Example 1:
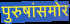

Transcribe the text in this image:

पुरुषांसमोर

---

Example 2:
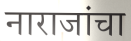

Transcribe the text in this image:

नाराजांचा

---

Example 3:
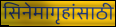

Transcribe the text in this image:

सिनेमागृहांसाठी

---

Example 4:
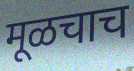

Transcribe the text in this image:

मूळचाच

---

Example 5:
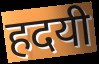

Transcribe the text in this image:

हदयी